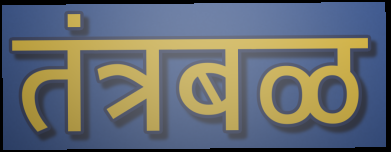
तंत्रबळ